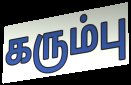
கரும்பு